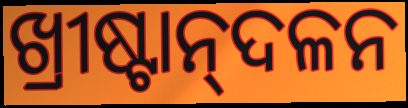
ଖ୍ରୀଷ୍ଟାନ୍‌ଦଳନ